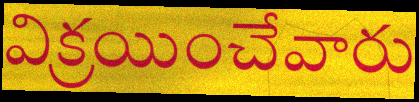
విక్రయించేవారు